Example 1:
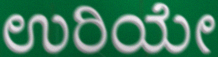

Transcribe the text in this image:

ಉರಿಯೇ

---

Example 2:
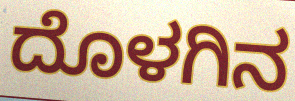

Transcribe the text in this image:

ದೊಳಗಿನ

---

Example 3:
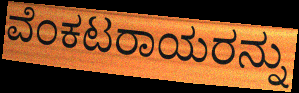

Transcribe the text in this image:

ವೆಂಕಟರಾಯರನ್ನು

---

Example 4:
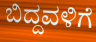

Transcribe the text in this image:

ಬಿದ್ದವಳಿಗೆ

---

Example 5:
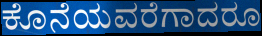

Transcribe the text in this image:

ಕೊನೆಯವರೆಗಾದರೂ